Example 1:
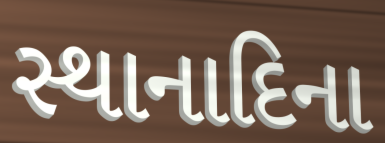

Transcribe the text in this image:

સ્થાનાદિના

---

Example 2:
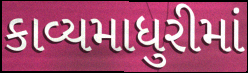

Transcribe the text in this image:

કાવ્યમાધુરીમાં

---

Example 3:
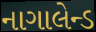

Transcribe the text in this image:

નાગાલેન્ડ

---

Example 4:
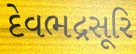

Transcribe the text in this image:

દેવભદ્રસૂરિ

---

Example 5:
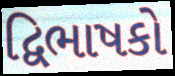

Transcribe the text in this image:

દ્વિભાષકો